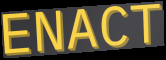
ENACT